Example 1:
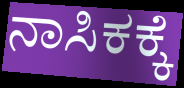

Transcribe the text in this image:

ನಾಸಿಕಕ್ಕೆ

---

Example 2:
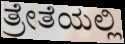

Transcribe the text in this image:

ತ್ರೇತೆಯಲ್ಲಿ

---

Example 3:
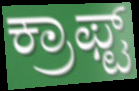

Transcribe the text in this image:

ಕ್ರಾಫ್ಟ್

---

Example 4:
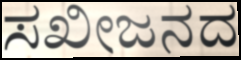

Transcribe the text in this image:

ಸಖೀಜನದ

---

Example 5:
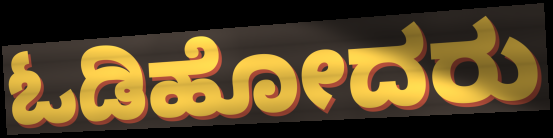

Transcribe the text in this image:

ಓಡಿಹೋದರು